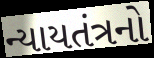
ન્યાયતંત્રનો